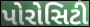
પોરોસિટી